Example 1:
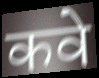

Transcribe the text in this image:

कवे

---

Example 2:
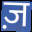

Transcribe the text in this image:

ज़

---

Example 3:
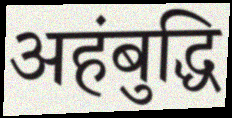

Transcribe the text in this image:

अहंबुद्धि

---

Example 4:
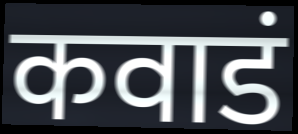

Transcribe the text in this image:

कवाडं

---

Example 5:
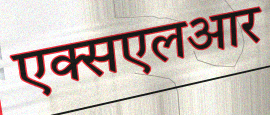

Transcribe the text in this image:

एक्सएलआर